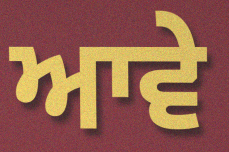
ਆਵੇ